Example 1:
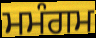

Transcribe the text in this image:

ਮਮੰਗਮ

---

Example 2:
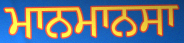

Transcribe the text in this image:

ਮਾਨਮਾਨਸਾ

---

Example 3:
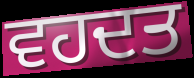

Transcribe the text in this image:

ਵਹਦਤ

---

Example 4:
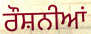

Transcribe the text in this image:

ਰੌਸ਼ਨੀਆਂ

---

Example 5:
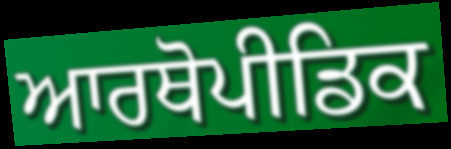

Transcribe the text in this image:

ਆਰਥੋਪੀਡਿਕ